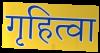
गृहित्वा